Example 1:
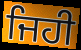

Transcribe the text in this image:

ਜਿਹੀ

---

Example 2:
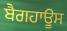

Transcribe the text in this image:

ਬੈਗਹਾਊਸ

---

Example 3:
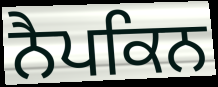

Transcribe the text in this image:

ਨੈਪਕਿਨ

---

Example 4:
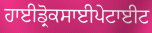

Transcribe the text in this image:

ਹਾਈਡ੍ਰੋਕਸਾਈਪੇਟਾਈਟ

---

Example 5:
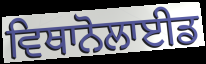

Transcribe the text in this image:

ਵਿਥਾਨੋਲਾਈਡ